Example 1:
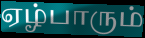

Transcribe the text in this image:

ஏழ்பாரும்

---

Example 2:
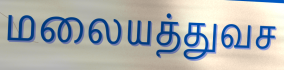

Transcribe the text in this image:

மலையத்துவச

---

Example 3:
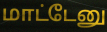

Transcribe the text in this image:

மாட்டேனு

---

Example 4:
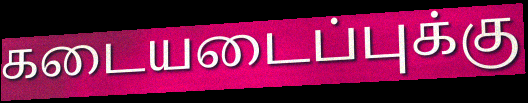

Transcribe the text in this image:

கடையடைப்புக்கு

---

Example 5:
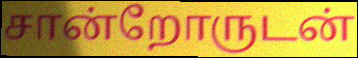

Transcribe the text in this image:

சான்றோருடன்